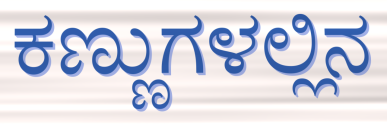
ಕಣ್ಣುಗಳಲ್ಲಿನ